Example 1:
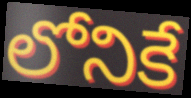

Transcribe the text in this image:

లోనికే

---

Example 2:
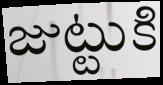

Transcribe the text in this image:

జుట్టుకి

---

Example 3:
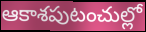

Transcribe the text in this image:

ఆకాశపుటంచుల్లో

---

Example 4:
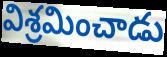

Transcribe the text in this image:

విశ్రమించాడు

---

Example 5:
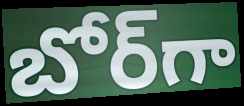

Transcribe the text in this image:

బోర్‌గా